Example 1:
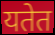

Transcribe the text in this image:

यतेत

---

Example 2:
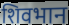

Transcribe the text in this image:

शिवभान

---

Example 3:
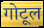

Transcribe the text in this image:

गोटूल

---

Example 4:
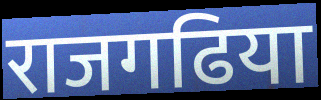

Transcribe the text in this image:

राजगढिया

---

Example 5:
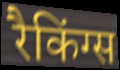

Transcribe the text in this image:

रैकिंग्स